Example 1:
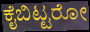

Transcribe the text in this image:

ಕೈಬಿಟ್ಟರೋ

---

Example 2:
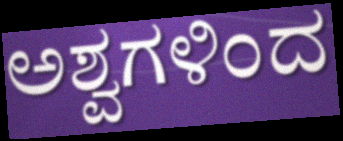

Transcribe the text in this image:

ಅಶ್ವಗಳಿಂದ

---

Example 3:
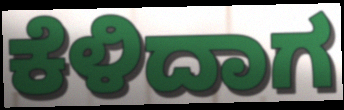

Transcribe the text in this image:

ಕೆಳಿದಾಗ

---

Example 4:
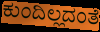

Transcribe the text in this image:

ಕುಂದಿಲ್ಲದಂತೆ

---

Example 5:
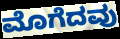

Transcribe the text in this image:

ಮೊಗೆದವು